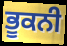
ਭੂਕਨੀ